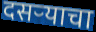
दसऱ्याचा